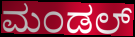
ಮಂಡಲ್